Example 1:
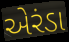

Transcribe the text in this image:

એરંડા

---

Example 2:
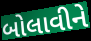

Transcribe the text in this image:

બોલાવીને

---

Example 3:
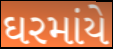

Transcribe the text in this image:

ઘરમાંયે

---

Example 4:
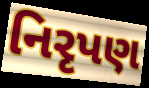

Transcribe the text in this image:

નિરૃપણ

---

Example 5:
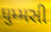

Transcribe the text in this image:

ધુમ્મસી